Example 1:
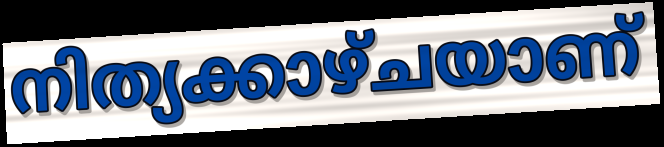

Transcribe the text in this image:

നിത്യക്കാഴ്ചയാണ്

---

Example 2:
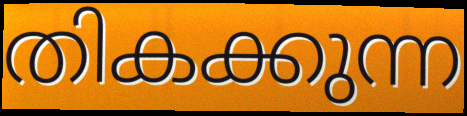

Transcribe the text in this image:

തികക്കുന്ന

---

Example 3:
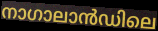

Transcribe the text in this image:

നാഗാലാൻഡിലെ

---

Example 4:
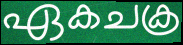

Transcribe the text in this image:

ഏകചക്ര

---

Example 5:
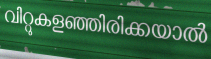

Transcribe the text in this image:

വിറ്റുകളഞ്ഞിരിക്കയാൽ